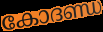
കോദണ്ഡ